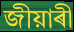
জীয়াৰী